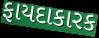
ફાયદાકારક